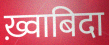
ख़्वाबिदा